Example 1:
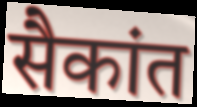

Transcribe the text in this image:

सैकांत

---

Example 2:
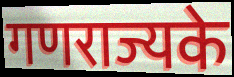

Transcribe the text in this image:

गणराज्यके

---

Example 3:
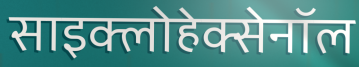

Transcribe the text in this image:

साइक्लोहेक्सेनॉल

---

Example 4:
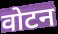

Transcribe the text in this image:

वोटन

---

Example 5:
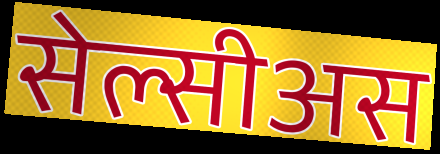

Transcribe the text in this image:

सेल्सीअस